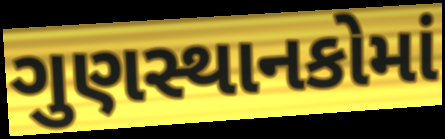
ગુણસ્થાનકોમાં